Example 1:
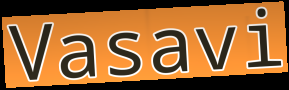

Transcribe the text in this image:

Vasavi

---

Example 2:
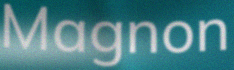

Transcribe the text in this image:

Magnon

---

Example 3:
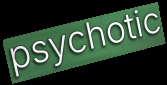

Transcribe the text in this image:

psychotic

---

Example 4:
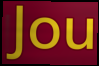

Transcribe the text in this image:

Jou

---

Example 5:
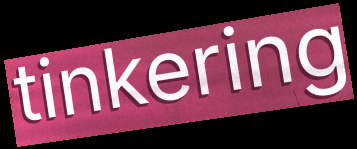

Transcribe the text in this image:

tinkering